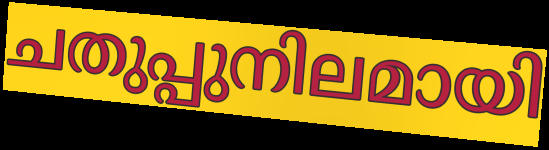
ചതുപ്പുനിലമായി